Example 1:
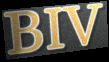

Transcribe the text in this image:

BIV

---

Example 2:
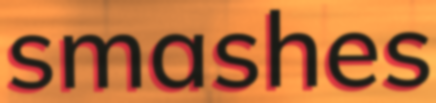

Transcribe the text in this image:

smashes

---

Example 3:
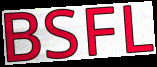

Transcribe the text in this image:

BSFL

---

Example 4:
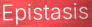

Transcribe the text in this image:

Epistasis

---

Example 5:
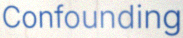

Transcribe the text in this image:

Confounding